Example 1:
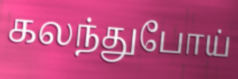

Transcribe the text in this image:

கலந்துபோய்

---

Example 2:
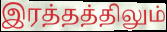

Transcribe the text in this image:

இரத்தத்திலும்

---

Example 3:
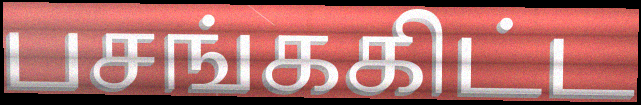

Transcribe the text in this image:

பசங்ககிட்ட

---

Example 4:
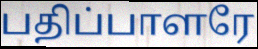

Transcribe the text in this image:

பதிப்பாளரே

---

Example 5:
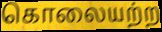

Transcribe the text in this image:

கொலையற்ற